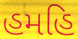
હમહિ